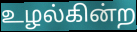
உழல்கின்ற